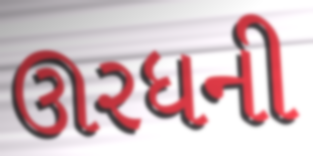
ઊરધની